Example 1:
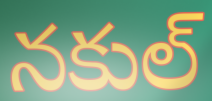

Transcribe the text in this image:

నకుల్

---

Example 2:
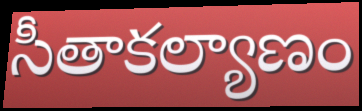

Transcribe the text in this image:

సీతాకల్యాణం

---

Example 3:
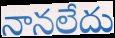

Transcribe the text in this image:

నానలేదు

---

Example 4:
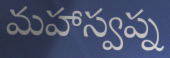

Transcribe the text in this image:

మహాస్వప్న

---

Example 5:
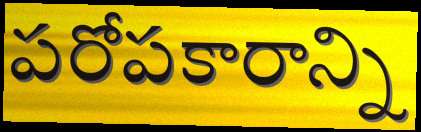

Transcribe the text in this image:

పరోపకారాన్ని